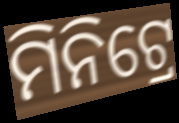
ମିନିଟ୍ରେ